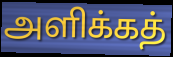
அளிக்கத்